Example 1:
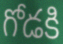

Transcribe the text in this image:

గోడకి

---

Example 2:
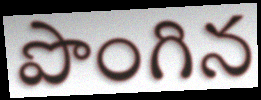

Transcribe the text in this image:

పొంగిన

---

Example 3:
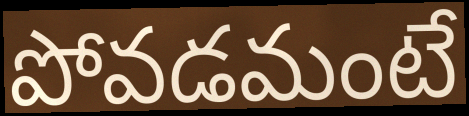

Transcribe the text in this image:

పోవడమంటే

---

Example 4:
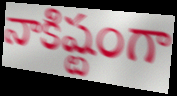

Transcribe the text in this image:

నాకిష్టంగా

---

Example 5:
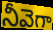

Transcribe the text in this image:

నీవెగా